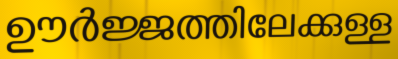
ഊർജ്ജത്തിലേക്കുള്ള